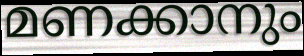
മണക്കാനും